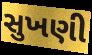
સુખણી